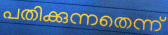
പതിക്കുന്നതെന്ന്